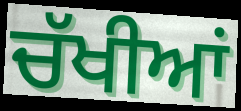
ਚੱਖੀਆਂ